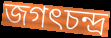
জগৎচন্দ্র